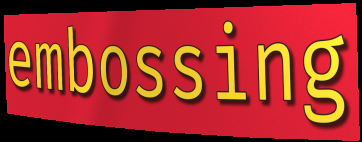
embossing